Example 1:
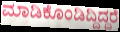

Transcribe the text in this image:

ಮಾಡಿಕೊಂಡಿದ್ದಿದ್ದರೆ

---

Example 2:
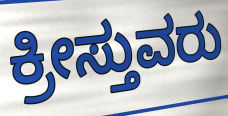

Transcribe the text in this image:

ಕ್ರೀಸ್ತುವರು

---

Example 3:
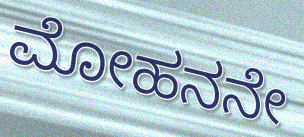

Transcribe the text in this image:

ಮೋಹನನೇ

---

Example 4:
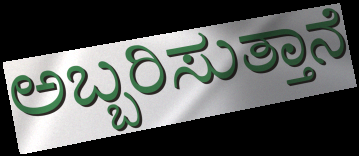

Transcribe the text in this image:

ಅಬ್ಬರಿಸುತ್ತಾನೆ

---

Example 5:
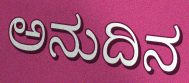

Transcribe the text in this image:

ಅನುದಿನ